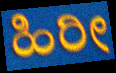
ಹಿರೀ